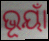
ଭୂୟାଁ